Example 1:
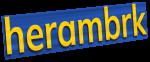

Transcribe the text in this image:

herambrk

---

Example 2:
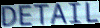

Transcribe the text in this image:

DETAIL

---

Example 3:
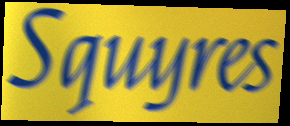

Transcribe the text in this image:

Squyres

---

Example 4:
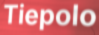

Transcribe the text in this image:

Tiepolo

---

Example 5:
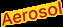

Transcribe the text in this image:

Aerosol